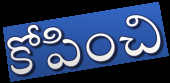
కోపించి